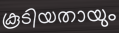
കൂടിയതായും